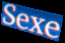
Sexe